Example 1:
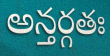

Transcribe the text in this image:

అన్తర్గతః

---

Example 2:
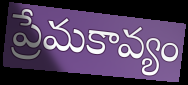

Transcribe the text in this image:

ప్రేమకావ్యం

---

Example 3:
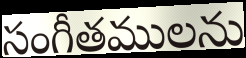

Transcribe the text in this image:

సంగీతములను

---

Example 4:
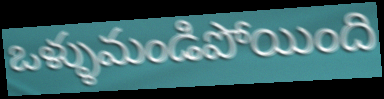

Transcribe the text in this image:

ఒళ్ళుమండిపోయింది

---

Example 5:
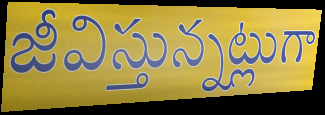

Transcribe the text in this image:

జీవిస్తున్నట్లుగా